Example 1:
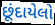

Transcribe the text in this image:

છૂંદાયેલો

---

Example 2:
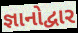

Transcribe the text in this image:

જ્ઞાનોદ્વાર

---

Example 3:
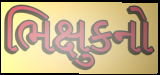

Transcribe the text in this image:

ભિક્ષુકનો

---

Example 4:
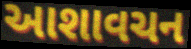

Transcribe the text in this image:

આશાવચન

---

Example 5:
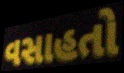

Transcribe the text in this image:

વસાહતો